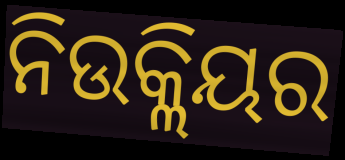
ନିଉକ୍ଲିୟର